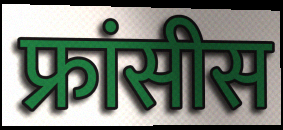
फ्रांसीस